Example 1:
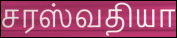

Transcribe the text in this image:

சரஸ்வதியா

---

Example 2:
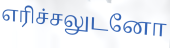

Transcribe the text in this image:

எரிச்சலுடனோ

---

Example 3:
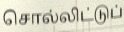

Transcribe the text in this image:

சொல்லிட்டுப்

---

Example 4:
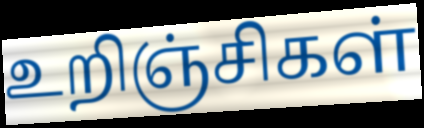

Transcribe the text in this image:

உறிஞ்சிகள்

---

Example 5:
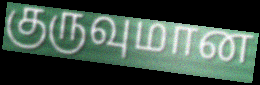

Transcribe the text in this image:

குருவுமான